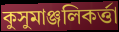
কুসুমাঞ্জলিকর্ত্তা